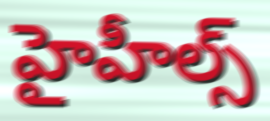
హైహీల్స్